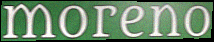
moreno